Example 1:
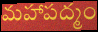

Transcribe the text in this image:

మహాపద్మం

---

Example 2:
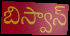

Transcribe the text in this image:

బిస్వాస్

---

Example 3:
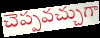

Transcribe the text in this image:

చెప్పవచ్చుగా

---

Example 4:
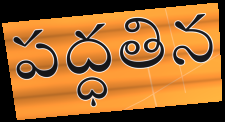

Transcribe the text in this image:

పద్ధతిన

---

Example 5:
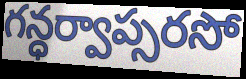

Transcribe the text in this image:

గన్ధర్వాప్సరసో